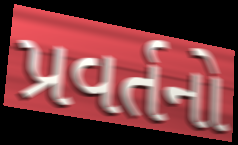
પ્રવર્તનો